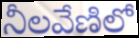
నీలవేణిలో